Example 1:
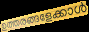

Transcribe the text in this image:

ഉത്തരങ്ങളേക്കാൾ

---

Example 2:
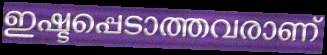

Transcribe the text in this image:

ഇഷ്ടപ്പെടാത്തവരാണ്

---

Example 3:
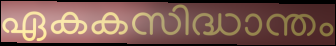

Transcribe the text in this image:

ഏകകസിദ്ധാന്തം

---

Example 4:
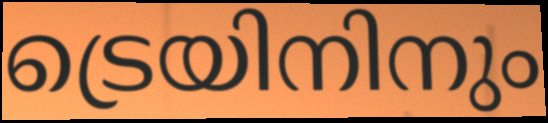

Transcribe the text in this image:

ട്രെയിനിനും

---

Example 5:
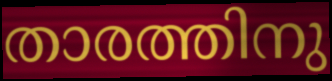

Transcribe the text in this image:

താരത്തിനു